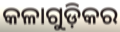
କଳାଗୁଡ଼ିକର